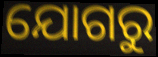
ଯୋଗରୁ